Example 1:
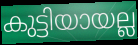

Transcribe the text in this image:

കുട്ടിയായല്ല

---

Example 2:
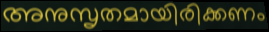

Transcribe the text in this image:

അനുസൃതമായിരിക്കണം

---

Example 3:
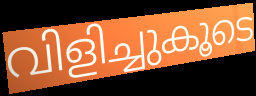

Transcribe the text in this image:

വിളിച്ചുകൂടെ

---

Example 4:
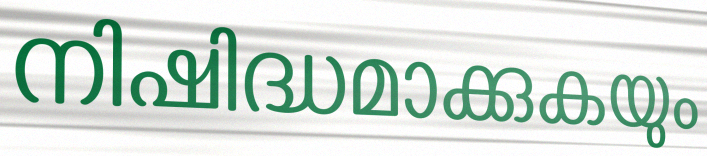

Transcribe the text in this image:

നിഷിദ്ധമാക്കുകയും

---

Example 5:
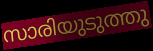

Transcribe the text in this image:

സാരിയുടുത്തു